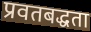
प्रवतबद्धता